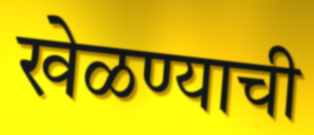
खेळण्याची